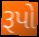
રૂપો